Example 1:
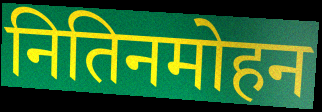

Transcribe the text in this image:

नितिनमोहन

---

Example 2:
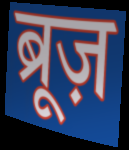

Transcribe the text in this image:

ब्रूज़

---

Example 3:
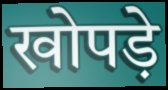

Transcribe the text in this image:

खोपड़े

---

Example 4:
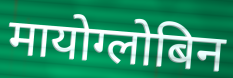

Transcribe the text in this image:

मायोग्लोबिन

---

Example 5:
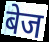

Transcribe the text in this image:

बेज